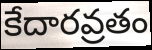
కేదారవ్రతం